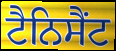
ਟੈਨਿਸੈਂਟ